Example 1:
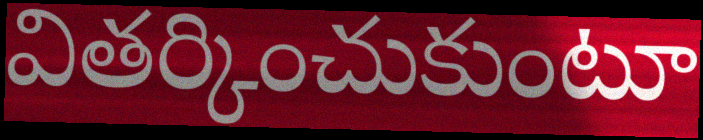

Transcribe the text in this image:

వితర్కించుకుంటూ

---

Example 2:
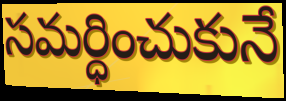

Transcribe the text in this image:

సమర్ధించుకునే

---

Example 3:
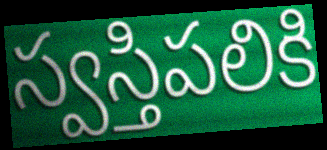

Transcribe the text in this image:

స్వస్తిపలికి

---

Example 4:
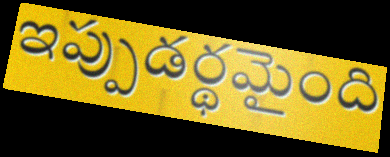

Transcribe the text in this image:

ఇప్పుడర్థమైంది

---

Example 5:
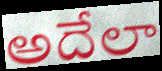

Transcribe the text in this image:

అదేలా